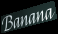
Banana